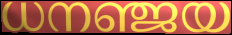
ധനഞ്ജയ